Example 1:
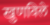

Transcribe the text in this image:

खुणविले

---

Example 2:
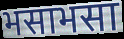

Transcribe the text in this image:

भसाभसा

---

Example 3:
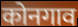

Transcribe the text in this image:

कोनगाव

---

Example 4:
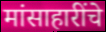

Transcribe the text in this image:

मांसाहारींचे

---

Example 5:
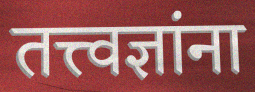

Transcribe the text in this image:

तत्त्वज्ञांना